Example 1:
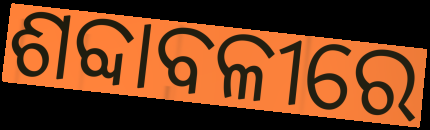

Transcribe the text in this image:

ଶବ୍ଦାବଳୀରେ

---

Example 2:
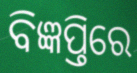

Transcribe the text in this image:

ବିଜ୍ଞପ୍ତିରେ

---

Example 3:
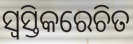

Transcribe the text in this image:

ସ୍ୱସ୍ତିକରେଚିତ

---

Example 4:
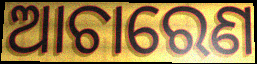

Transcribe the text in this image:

ଆଚାରେଣ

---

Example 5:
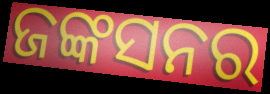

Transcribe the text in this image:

ଜଙ୍କସନର